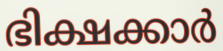
ഭിക്ഷക്കാർ